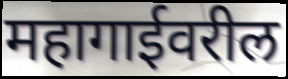
महागाईवरील